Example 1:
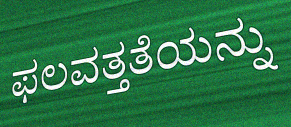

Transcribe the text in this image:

ಫಲವತ್ತತೆಯನ್ನು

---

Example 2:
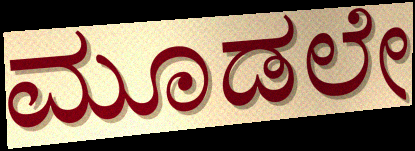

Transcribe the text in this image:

ಮೂಡಲೇ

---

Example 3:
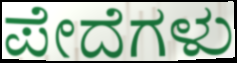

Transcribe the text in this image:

ಪೇದೆಗಳು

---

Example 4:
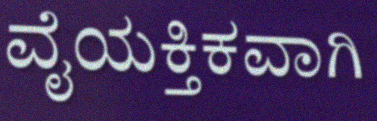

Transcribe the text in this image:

ವೈಯಕ್ತಿಕವಾಗಿ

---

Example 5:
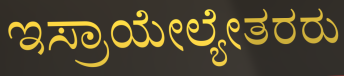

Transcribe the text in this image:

ಇಸ್ರಾಯೇಲ್ಯೇತರರು